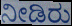
ನೀಡಿರು